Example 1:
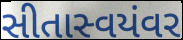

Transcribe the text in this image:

સીતાસ્વયંવર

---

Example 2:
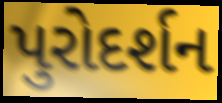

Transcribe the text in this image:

પુરોદર્શન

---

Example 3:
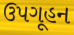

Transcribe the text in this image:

ઉપગૂહન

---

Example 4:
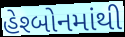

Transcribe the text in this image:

હેશ્બોનમાંથી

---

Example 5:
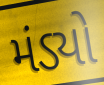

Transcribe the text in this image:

મંડ્યો